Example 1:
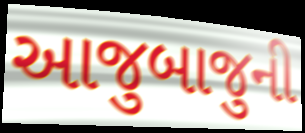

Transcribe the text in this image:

આજુબાજુની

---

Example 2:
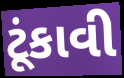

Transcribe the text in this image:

ટૂંકાવી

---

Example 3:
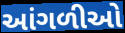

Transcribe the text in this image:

આંગળીઓ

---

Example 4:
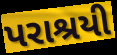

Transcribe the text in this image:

પરાશ્રયી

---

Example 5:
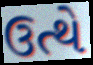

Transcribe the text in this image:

ઉત્થે